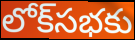
లోక్‌సభకు